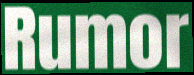
Rumor